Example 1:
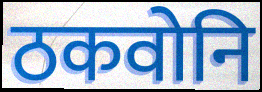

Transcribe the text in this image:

ठकवोनि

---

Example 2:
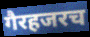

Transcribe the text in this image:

गैरहजरच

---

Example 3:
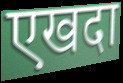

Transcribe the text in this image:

एखदा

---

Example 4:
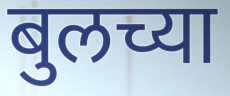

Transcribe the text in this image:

बुलच्या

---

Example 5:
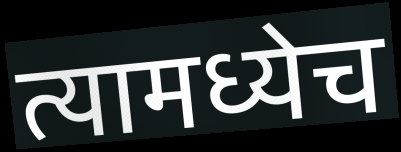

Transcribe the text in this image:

त्यामध्येच